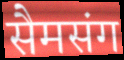
सैमसंग